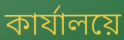
কার্যালয়ে